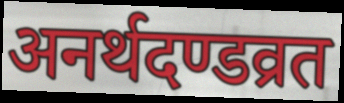
अनर्थदण्डव्रत